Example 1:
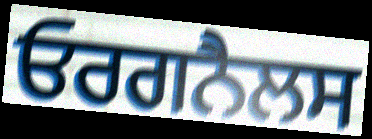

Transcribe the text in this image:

ਓਰਗਨੈਲਸ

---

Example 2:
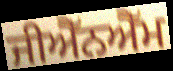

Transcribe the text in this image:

ਜੀਐੱਨਐੱਮ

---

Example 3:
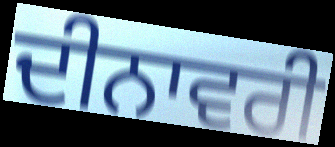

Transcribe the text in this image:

ਦੀਨਾਵਰੀ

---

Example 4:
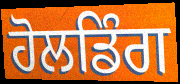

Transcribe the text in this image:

ਹੋਲਡਿੰਗ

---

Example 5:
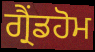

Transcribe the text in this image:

ਗ੍ਰੈਂਡਹੋਮ